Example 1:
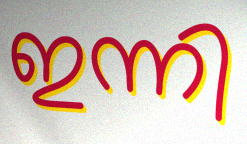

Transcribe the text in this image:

ഇന്നി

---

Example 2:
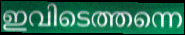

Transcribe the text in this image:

ഇവിടെത്തന്നെ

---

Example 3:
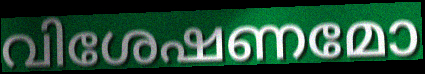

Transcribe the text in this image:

വിശേഷണമോ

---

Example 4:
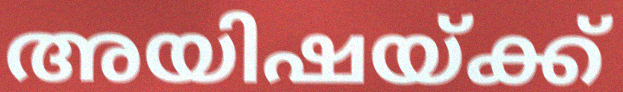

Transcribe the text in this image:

അയിഷയ്ക്ക്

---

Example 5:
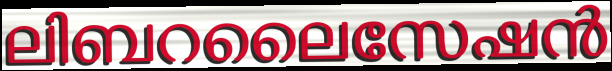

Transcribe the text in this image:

ലിബറലൈസേഷൻ